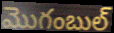
మొగంబుల్